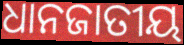
ଧାନଜାତୀୟ